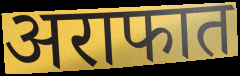
अराफात